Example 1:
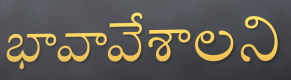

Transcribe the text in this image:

భావావేశాలని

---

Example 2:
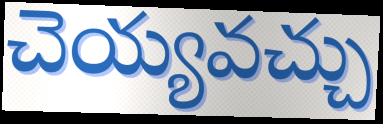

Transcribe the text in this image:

చెయ్యవచ్చు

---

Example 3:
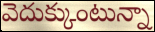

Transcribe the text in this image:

వెదుక్కుంటున్నా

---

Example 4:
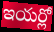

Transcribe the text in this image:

ఇయర్లో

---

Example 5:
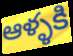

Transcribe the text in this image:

ఆళ్ళకి